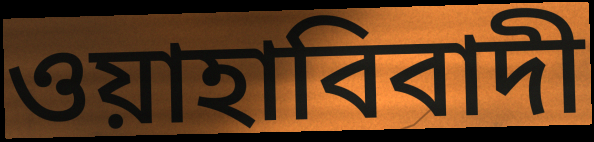
ওয়াহাবিবাদী